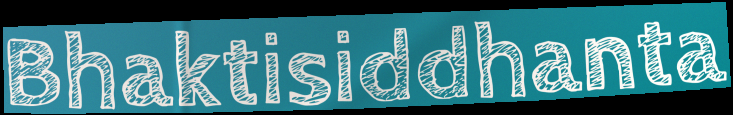
Bhaktisiddhanta